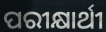
ପରୀକ୍ଷାର୍ଥୀ